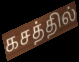
கசத்தில்